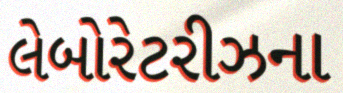
લેબોરેટરીઝના